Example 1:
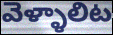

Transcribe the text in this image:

వెళ్ళాలిట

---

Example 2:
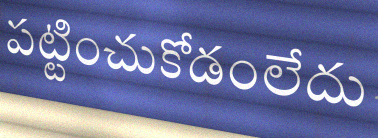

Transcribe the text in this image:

పట్టించుకోడంలేదు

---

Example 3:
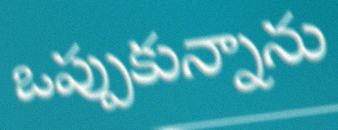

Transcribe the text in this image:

ఒప్పుకున్నాను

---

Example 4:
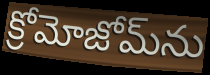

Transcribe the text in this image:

క్రోమోజోమ్‌ను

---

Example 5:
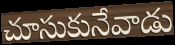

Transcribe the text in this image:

చూసుకునేవాడు